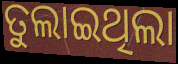
ତୁଲାଇଥିଲା